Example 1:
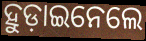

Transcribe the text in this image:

ହୁଡ଼ାଇନେଲେ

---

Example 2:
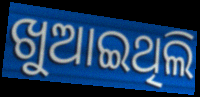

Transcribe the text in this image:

ଖୁଆଇଥିଲି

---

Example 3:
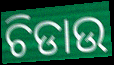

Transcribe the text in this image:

ଚିଡାଉ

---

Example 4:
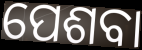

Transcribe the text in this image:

ପେଶବା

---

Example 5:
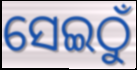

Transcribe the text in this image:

ସେଇଠୁଁ